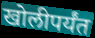
खोलीपर्यंत